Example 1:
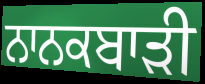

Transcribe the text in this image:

ਨਾਨਕਬਾੜੀ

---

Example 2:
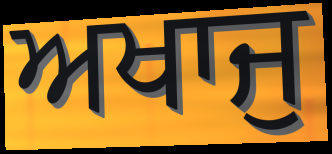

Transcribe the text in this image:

ਅਖਾਜੁ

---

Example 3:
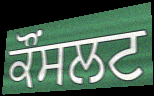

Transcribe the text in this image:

ਕੌਂਸਲਟ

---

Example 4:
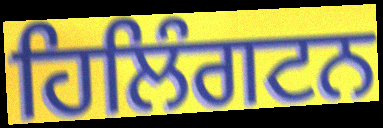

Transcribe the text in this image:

ਹਿਲਿੰਗਟਨ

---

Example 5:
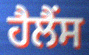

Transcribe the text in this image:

ਹੈਲੈਂਸ